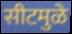
सीटमुळे